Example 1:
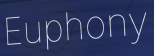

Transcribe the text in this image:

Euphony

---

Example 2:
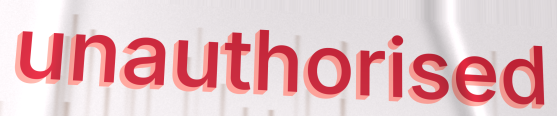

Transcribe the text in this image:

unauthorised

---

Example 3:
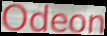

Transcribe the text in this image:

Odeon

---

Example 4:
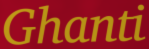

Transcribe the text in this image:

Ghanti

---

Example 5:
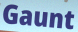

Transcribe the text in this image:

Gaunt